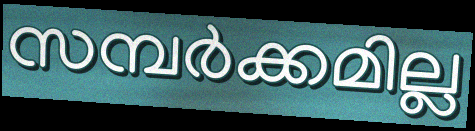
സമ്പർക്കമില്ല